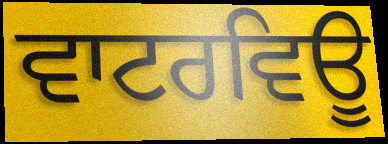
ਵਾਟਰਵਿਊ